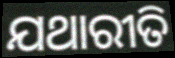
ଯଥାରୀତି